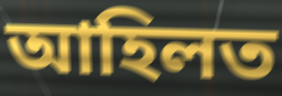
আহিলত